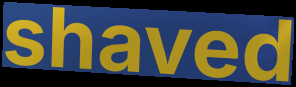
shaved